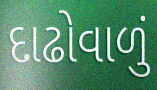
દાઢોવાળું